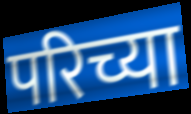
परिच्या